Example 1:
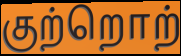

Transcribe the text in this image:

குற்றொற்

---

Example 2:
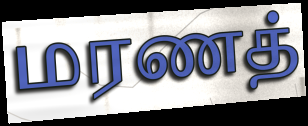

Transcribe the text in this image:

மரணத்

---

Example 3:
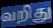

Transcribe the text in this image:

வறிது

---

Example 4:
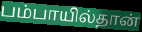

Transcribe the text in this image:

பம்பாயில்தான்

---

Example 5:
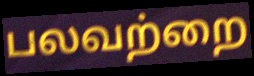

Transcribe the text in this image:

பலவற்றை